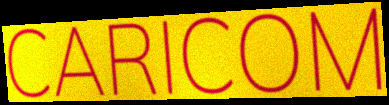
CARICOM